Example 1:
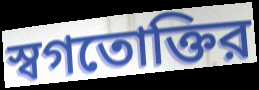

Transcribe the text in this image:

স্বগতোক্তির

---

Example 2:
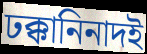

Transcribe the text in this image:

ঢক্কানিনাদই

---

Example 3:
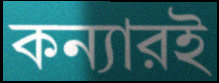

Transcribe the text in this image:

কন্যারই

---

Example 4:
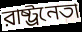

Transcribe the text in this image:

রাষ্ট্রনেতা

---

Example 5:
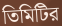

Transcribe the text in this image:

তিমিটির